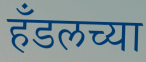
हँडलच्या